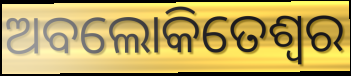
ଅବଲୋକିତେଶ୍ୱର